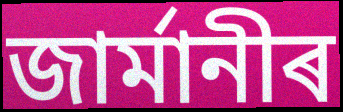
জাৰ্মানীৰ